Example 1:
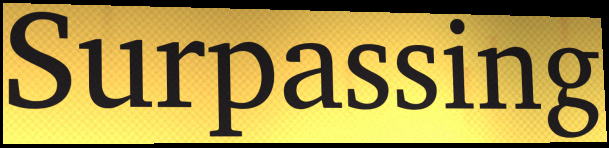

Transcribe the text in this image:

Surpassing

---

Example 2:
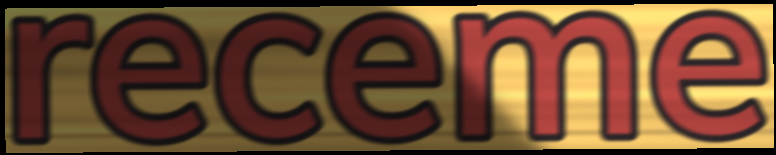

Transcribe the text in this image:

receme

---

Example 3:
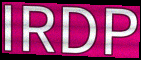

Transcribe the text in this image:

IRDP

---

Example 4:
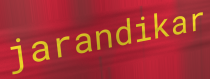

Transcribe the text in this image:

jarandikar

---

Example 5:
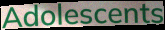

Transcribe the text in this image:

Adolescents